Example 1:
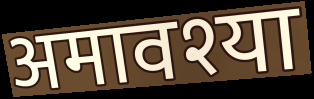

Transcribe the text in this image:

अमावश्या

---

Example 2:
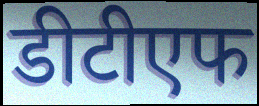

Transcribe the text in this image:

डीटीएफ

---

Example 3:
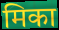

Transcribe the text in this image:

मिका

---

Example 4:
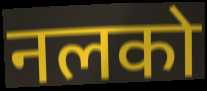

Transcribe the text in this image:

नलको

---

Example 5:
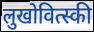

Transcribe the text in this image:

लुखोवित्स्की